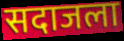
सदाजला